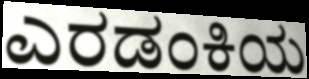
ಎರಡಂಕಿಯ